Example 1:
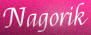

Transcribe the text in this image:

Nagorik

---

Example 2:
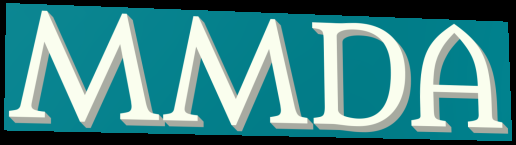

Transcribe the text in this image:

MMDA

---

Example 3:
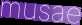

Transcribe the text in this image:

musae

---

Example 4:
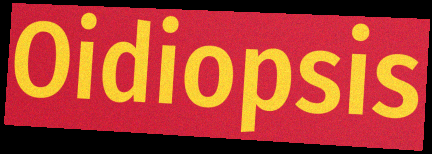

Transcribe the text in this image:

Oidiopsis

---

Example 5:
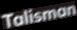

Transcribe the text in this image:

Talisman